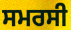
ਸਮਰਸੀ